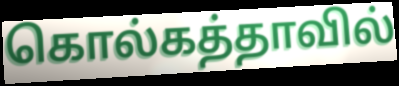
கொல்கத்தாவில்